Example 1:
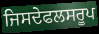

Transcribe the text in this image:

ਜਿਸਦੇਫਲਸਰੂਪ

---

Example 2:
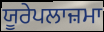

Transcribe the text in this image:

ਯੂਰੇਪਲਾਜ਼ਮਾ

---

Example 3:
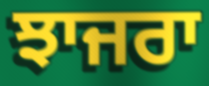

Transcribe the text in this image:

ਝਾਜਰਾ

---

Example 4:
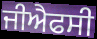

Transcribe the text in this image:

ਜੀਐਫਸੀ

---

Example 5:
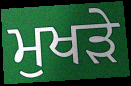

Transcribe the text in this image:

ਮੁਖੜੇ